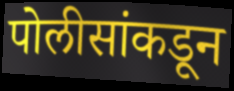
पोलीसांकडून